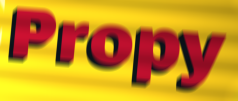
Propy